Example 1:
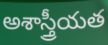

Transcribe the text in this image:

అశాస్త్రీయత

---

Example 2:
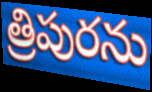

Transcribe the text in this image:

త్రిపురను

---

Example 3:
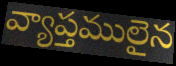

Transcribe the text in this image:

వ్యాప్తములైన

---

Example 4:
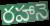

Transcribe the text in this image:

రహానె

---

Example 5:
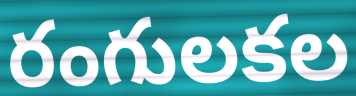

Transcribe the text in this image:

రంగులకల